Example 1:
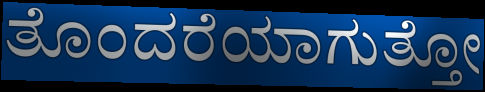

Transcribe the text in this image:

ತೊಂದರೆಯಾಗುತ್ತೋ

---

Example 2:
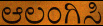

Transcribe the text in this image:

ಆಲಂಗಿಸಿ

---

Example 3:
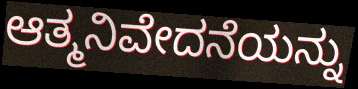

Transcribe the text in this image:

ಆತ್ಮನಿವೇದನೆಯನ್ನು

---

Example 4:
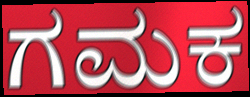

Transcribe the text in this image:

ಗಮಕ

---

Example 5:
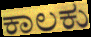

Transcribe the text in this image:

ಕಾಲಕು